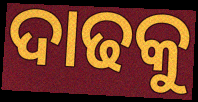
ଦାଢକୁ